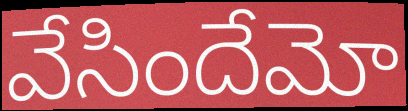
వేసిందేమో